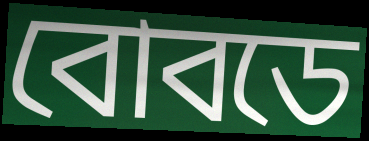
বোবডে